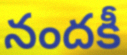
నందకీ